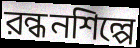
রন্ধনশিল্পে